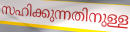
സഹിക്കുന്നതിനുള്ള